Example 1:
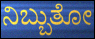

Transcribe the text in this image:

ನಿಬ್ಬುತೋ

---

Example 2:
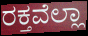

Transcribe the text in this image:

ರಕ್ತವೆಲ್ಲಾ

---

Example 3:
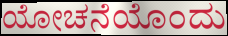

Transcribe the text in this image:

ಯೋಚನೆಯೊಂದು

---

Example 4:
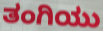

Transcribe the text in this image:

ತಂಗಿಯು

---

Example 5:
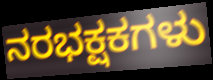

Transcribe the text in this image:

ನರಭಕ್ಷಕಗಳು